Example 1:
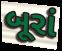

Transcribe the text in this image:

બૂરાં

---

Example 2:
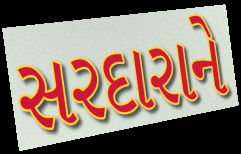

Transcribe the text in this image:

સરદારાને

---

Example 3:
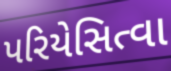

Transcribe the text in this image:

પરિયેસિત્વા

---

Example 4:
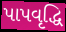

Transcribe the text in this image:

પાપવૃદ્ધિ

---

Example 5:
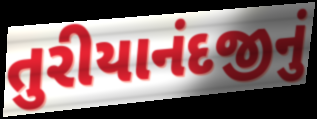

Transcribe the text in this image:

તુરીયાનંદજીનું